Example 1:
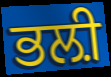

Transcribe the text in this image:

ਭਲ਼ੀ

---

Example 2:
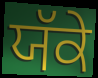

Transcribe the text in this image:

ਯੱਕੇ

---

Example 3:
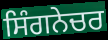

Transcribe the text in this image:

ਸਿੰਗਨੇਚਰ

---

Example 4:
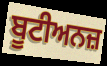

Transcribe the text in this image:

ਬੂਟੀਅਨਜ਼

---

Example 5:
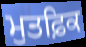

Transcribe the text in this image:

ਮੁਤਫ਼ਿਕ